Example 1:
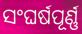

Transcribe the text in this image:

ସଂଘର୍ଷପୂର୍ଣ୍ଣ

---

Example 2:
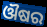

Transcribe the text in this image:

ଔଷର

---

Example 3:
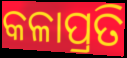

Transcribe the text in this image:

କଳାପ୍ରତି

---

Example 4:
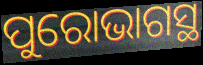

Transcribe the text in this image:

ପୁରୋଭାଗସ୍ଥ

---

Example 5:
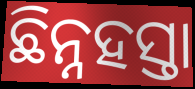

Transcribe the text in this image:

ଛିନ୍ନହସ୍ତା